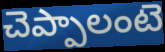
చెప్పాలంటె